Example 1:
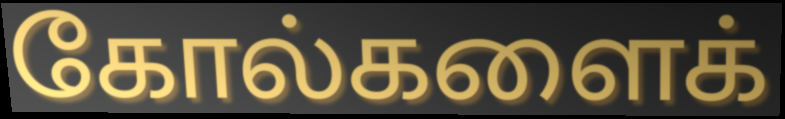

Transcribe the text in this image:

கோல்களைக்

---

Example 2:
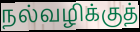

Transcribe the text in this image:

நல்வழிக்குத்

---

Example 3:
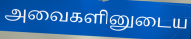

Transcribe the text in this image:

அவைகளினுடைய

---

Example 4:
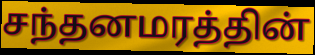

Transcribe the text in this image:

சந்தனமரத்தின்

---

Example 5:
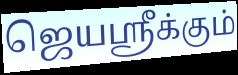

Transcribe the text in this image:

ஜெயஸ்ரீக்கும்